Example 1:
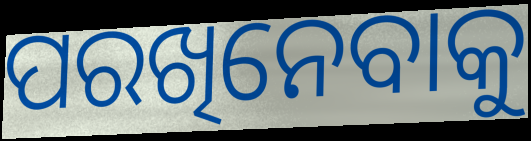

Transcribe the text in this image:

ପରଖିନେବାକୁ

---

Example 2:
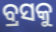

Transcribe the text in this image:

ବ୍ରସକୁ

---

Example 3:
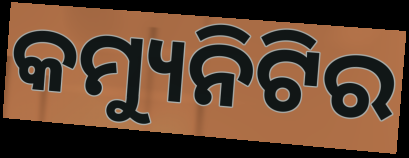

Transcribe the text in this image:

କମ୍ୟୁନିଟିର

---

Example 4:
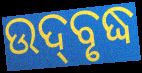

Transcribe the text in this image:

ଉଦ୍‌ବୃଦ୍ଧ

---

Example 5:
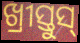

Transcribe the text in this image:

ଖ୍ରୀସ୍ତୁସ୍